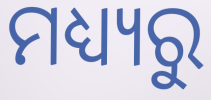
ମଧ୍ୟ୍ୟରୁ